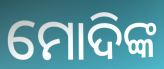
ମୋଦିଙ୍କ